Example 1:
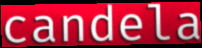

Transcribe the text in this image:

candela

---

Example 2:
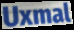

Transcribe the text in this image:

Uxmal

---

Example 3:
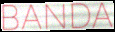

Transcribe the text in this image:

BANDA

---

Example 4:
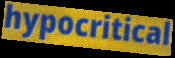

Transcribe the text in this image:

hypocritical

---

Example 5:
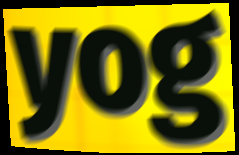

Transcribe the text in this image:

yog